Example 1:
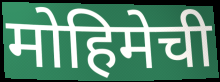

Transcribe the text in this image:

मोहिमेची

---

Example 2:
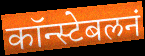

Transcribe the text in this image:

कॉन्स्टेबलनं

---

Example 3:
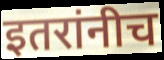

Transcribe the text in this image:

इतरांनीच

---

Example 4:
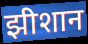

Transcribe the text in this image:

झीशान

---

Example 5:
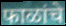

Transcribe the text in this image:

फाळांचे